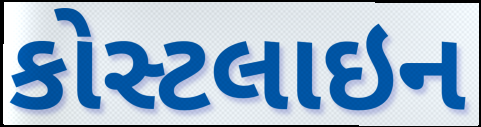
કોસ્ટલાઇન